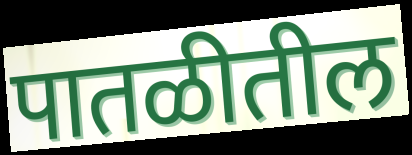
पातळीतील